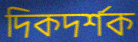
দিকদর্শক